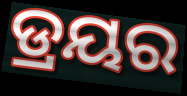
ଡ୍ରୟର